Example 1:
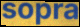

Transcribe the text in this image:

sopra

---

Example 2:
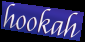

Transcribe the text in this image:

hookah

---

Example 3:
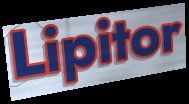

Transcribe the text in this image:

Lipitor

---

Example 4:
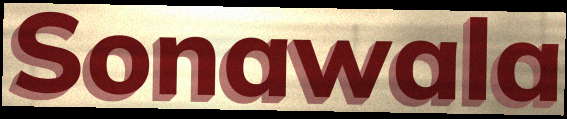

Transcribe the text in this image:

Sonawala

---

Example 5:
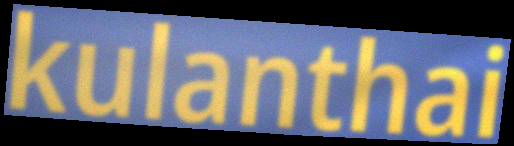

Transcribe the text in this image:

kulanthai